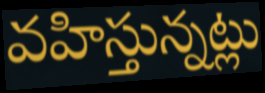
వహిస్తున్నట్లు